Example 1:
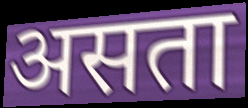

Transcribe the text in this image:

असता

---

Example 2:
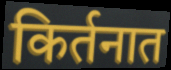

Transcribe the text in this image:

किर्तनात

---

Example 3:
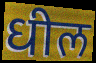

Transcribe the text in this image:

धील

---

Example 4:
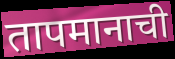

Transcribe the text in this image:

तापमानाची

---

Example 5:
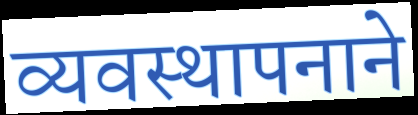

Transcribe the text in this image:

व्यवस्थापनाने